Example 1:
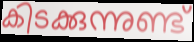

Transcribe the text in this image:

കിടക്കുന്നുണ്ട്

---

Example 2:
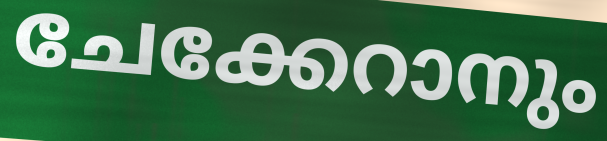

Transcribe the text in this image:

ചേക്കേറാനും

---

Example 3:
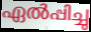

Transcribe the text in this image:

ഏൽപ്പിച്ചു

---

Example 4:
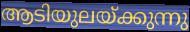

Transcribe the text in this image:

ആടിയുലയ്ക്കുന്നു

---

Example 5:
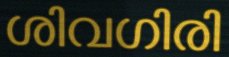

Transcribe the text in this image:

ശിവഗിരി